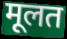
मूलत